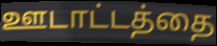
ஊடாட்டத்தை